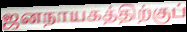
ஜனநாயகத்திற்குப்